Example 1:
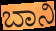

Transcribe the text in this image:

ಬಾನಿ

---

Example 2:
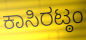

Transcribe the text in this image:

ಕಾಸಿರಟ್ಠಂ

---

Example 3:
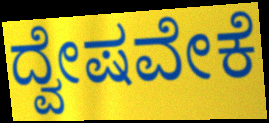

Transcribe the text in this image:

ದ್ವೇಷವೇಕೆ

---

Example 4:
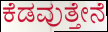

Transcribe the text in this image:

ಕೆಡವುತ್ತೇನೆ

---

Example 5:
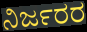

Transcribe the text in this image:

ನಿರ್ಜರರ